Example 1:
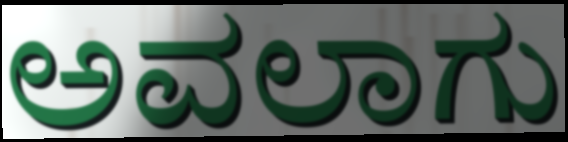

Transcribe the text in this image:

ಅವಲಾಗು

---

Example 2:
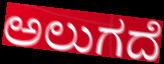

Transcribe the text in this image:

ಅಲುಗದೆ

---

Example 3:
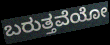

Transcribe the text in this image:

ಬರುತ್ತವೆಯೋ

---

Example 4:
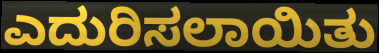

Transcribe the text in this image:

ಎದುರಿಸಲಾಯಿತು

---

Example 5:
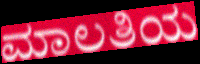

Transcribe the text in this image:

ಮಾಲತಿಯ